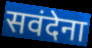
सवंदेना